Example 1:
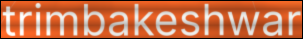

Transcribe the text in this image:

trimbakeshwar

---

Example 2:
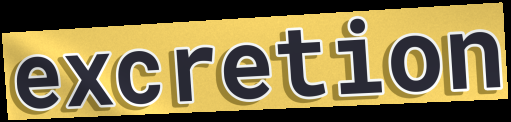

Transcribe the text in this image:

excretion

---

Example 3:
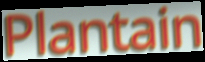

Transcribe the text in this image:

Plantain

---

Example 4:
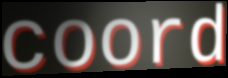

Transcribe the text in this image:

coord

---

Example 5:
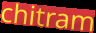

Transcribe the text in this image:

chitram